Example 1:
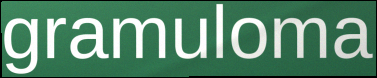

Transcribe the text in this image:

gramuloma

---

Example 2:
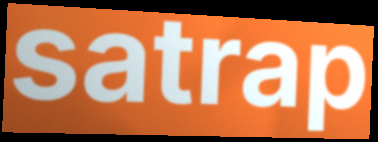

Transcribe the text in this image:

satrap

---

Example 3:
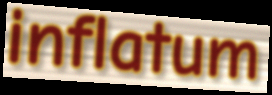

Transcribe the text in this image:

inflatum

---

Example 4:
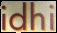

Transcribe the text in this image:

idhi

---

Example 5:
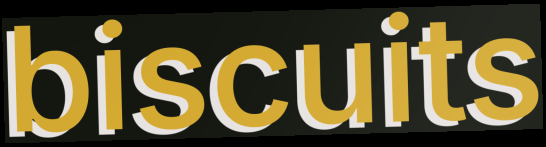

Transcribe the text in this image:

biscuits